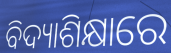
ବିଦ୍ୟାଶିକ୍ଷାରେ